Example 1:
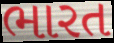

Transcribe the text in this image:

ભારત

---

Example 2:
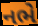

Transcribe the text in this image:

નભે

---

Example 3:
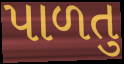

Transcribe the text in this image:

પાળતુ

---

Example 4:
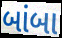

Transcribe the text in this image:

બાંબા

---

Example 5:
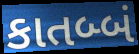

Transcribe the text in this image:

કાતબ્બં